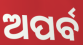
ଅପର୍ବ